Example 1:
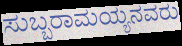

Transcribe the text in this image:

ಸುಬ್ಬರಾಮಯ್ಯನವರು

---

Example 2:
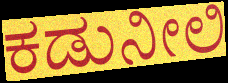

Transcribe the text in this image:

ಕಡುನೀಲಿ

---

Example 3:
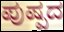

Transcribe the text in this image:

ಪುಷ್ಪದ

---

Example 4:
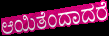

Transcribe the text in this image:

ಆಯಿತೆಂದಾದರೆ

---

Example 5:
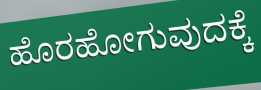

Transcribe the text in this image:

ಹೊರಹೋಗುವುದಕ್ಕೆ